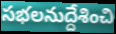
సభలనుద్దేశించి